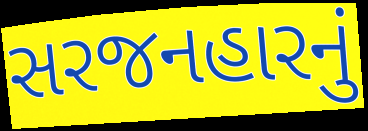
સરજનહારનું